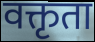
वक्तृता